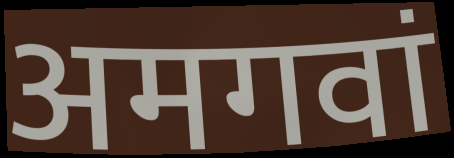
अमगवां